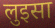
लुइसा